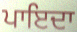
ਪਾਇਦਾ